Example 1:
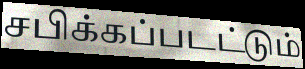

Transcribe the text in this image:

சபிக்கப்படட்டும்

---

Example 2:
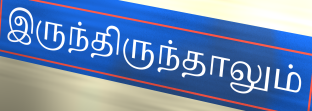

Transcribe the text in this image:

இருந்திருந்தாலும்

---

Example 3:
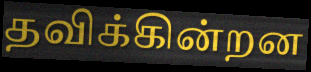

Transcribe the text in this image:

தவிக்கின்றன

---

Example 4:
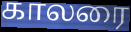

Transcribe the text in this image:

காலரை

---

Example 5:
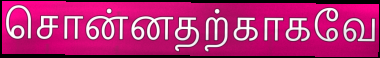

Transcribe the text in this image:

சொன்னதற்காகவே